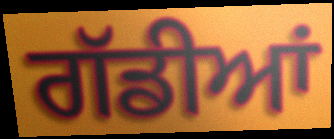
ਗੱਡੀਆਂ